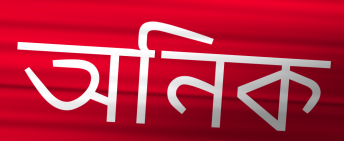
অনিক